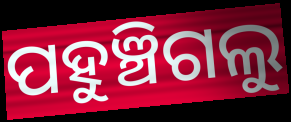
ପହୁଞ୍ଚିଗଲୁ